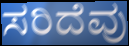
ಸರಿದೆವು